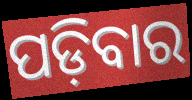
ପଡ଼ିବାର